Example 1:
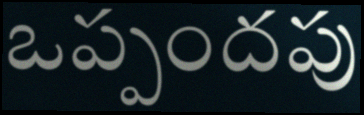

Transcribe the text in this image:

ఒప్పందపు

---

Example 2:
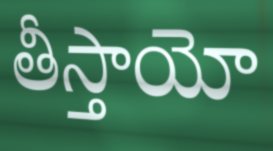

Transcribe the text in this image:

తీస్తాయో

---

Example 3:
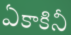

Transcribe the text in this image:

ఏకాకినీ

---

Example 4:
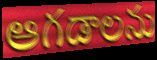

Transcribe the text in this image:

ఆగడాలను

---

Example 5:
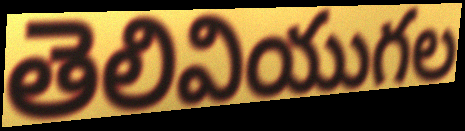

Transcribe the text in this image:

తెలివియుగల